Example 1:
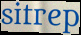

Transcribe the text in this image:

sitrep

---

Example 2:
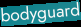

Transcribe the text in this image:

bodyguard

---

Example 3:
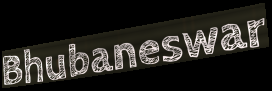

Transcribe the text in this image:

Bhubaneswar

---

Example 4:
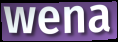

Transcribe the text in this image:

wena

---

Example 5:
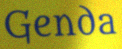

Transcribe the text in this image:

Genda